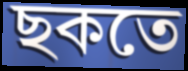
ছকতে